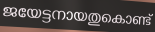
ജയേട്ടനായതുകൊണ്ട്